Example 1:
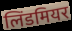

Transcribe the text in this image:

लिंडमियर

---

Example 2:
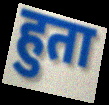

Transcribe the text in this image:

हुता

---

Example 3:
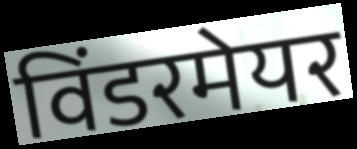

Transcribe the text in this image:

विंडरमेयर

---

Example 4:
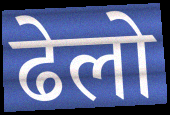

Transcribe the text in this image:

ढेलो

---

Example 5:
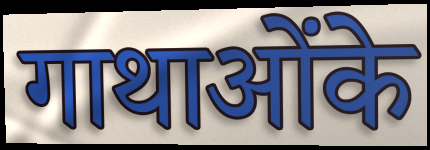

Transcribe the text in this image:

गाथाओंके